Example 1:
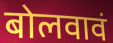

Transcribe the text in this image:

बोलवावं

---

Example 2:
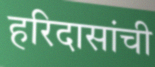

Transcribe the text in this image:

हरिदासांची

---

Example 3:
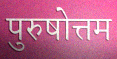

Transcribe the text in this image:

पुरुषोत्तम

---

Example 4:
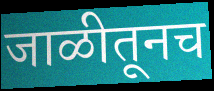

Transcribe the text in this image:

जाळीतूनच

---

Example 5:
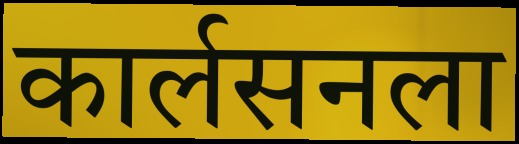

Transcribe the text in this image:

कार्लसनला